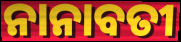
ନାନାବତୀ